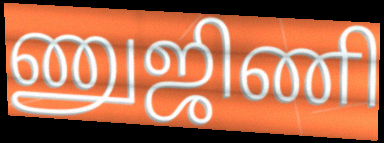
ணுஜிணி